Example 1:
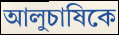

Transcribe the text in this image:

আলুচাষিকে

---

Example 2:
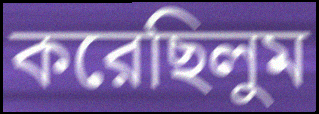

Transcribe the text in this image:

করেছিলুম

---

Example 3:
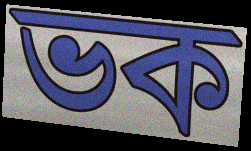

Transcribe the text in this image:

ভক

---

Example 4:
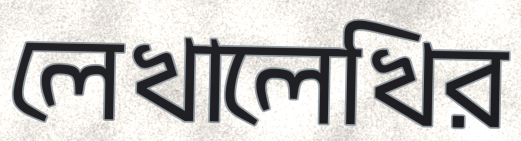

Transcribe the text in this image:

লেখালেখির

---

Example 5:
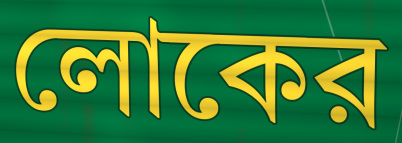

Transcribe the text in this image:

লোকের